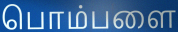
பொம்பளை